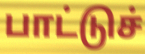
பாட்டுச்